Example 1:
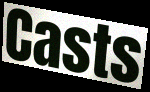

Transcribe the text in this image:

Casts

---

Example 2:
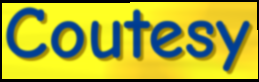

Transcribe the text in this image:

Coutesy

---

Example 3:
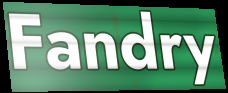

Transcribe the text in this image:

Fandry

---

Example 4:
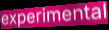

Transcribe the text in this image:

experimental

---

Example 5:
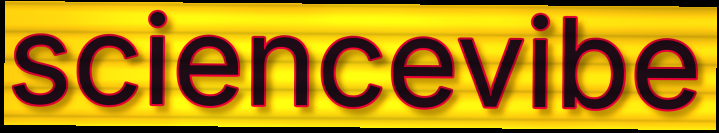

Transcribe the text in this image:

sciencevibe